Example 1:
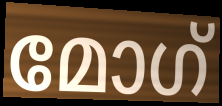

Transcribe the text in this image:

മോഗ്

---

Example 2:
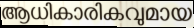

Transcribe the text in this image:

ആധികാരികവുമായ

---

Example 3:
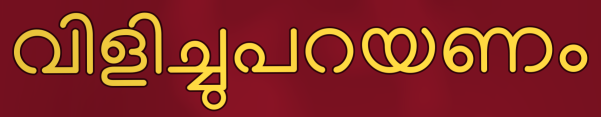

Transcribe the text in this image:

വിളിച്ചുപറയണം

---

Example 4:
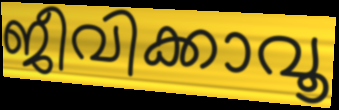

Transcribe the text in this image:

ജീവിക്കാവൂ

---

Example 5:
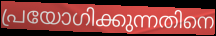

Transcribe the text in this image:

പ്രയോഗിക്കുന്നതിനെ